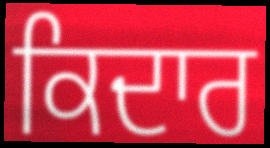
ਕਿਦਾਰ